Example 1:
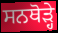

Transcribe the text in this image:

ਸਨਥੋੜ੍ਹੇ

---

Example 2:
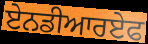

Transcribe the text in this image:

ਏਨਡੀਆਰਏਫ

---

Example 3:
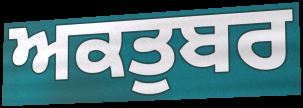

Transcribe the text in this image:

ਅਕਤੁਬਰ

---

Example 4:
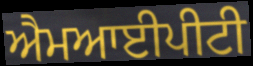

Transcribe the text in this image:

ਐਮਆਈਪੀਟੀ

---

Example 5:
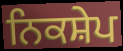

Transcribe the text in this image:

ਨਿਕਸ਼ੇਪ